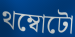
থম্বোটো